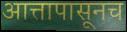
आत्तापासूनच